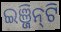
ଇଞ୍ଜିନ୍‌ଟି